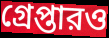
গ্রেপ্তারও